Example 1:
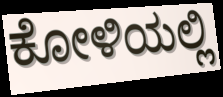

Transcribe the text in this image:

ಕೋಳಿಯಲ್ಲಿ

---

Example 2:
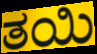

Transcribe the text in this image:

ತಯಿ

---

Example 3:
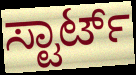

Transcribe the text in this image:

ಸ್ಟಾರ್ಟ್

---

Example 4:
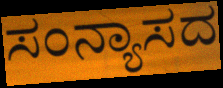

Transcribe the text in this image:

ಸಂನ್ಯಾಸದ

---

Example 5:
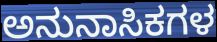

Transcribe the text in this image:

ಅನುನಾಸಿಕಗಳ